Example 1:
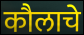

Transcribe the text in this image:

कौलाचे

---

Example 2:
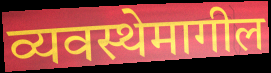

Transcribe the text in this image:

व्यवस्थेमागील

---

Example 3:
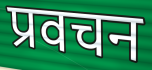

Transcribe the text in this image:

प्रवचन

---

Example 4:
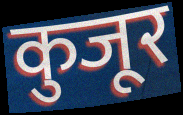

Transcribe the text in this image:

कुजूर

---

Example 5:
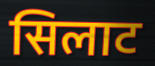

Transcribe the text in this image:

सिलाट